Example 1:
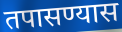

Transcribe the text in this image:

तपासण्यास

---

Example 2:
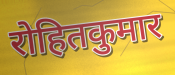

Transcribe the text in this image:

रोहितकुमार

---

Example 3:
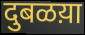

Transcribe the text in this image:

दुबळय़ा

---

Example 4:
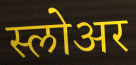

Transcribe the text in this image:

स्लोअर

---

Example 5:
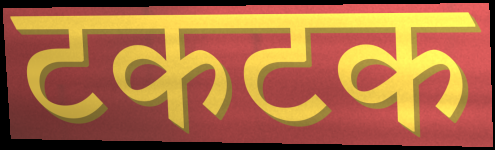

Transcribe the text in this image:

टकटक